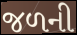
જળની